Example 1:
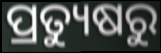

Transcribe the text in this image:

ପ୍ରତ୍ୟୁଷରୁ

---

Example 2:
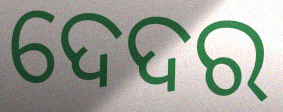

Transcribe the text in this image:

ଦେଦର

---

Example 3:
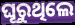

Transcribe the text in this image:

ଘୂରୁଥିଲେ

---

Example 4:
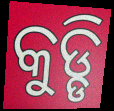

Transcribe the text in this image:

କୁଡ୍ଡି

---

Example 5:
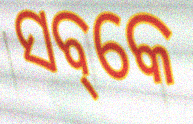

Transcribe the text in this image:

ସବ୍‌କେ